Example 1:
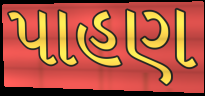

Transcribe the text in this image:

પાહણ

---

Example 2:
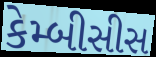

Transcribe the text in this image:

કેમ્બીસીસ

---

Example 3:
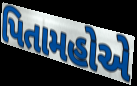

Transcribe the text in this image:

પિતામહોએ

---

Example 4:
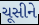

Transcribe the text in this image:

ચૂસીને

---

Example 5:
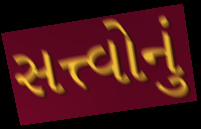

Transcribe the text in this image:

સત્ત્વોનું